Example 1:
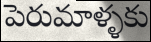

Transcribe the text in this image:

పెరుమాళ్ళకు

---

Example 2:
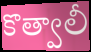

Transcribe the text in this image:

కొత్వాలీ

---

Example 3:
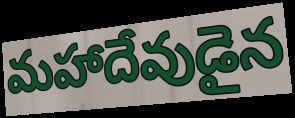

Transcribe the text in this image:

మహాదేవుడైన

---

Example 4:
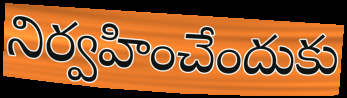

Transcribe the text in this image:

నిర్వహించేందుకు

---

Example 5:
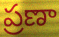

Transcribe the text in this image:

ప్రణా